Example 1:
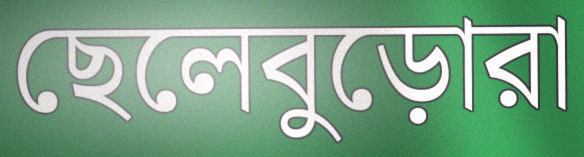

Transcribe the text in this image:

ছেলেবুড়োরা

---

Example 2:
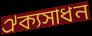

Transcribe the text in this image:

ঐক্যসাধন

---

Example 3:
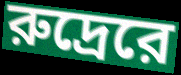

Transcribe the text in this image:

রুদ্রেরে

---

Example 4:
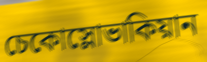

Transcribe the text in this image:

চেকোস্লোভাকিয়ান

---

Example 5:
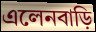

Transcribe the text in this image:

এলেনবাড়ি